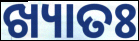
ଖ୍ୟାତଃ